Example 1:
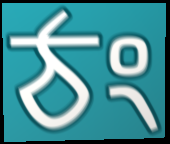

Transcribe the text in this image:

ঠং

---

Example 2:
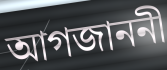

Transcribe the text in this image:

আগজাননী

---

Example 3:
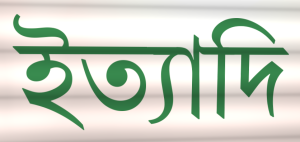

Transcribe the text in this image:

ইত্য়াদি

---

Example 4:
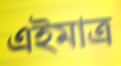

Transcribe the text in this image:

এইমাত্ৰ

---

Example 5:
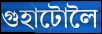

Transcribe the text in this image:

গুহাটোলৈ